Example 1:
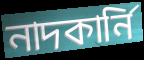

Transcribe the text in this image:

নাদকার্নি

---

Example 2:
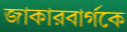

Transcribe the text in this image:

জাকারবার্গকে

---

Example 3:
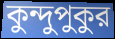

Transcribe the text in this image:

কুন্দুপুকুর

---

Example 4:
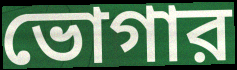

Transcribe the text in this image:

ভোগার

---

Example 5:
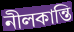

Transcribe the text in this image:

নীলকান্তি